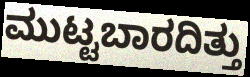
ಮುಟ್ಟಬಾರದಿತ್ತು